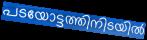
പടയോട്ടത്തിനിടയിൽ